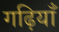
गढ़ियाँ